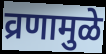
व्रणामुळे